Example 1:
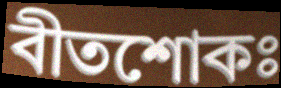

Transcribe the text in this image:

বীতশোকঃ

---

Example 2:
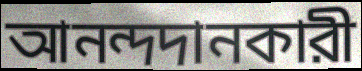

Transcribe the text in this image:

আনন্দদানকারী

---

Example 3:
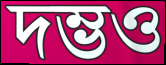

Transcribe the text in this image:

দম্ভও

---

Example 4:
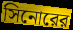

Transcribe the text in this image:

সিনোরের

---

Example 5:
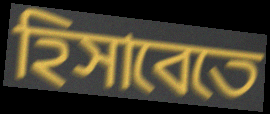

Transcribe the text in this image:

হিসাবেতে